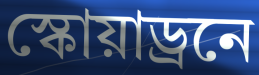
স্কোয়াড্রনে